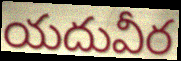
యదువీర